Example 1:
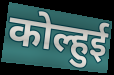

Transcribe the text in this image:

कोल्हुई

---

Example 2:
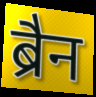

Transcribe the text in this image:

ब्रैन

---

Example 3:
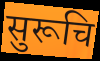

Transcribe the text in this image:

सुरूचि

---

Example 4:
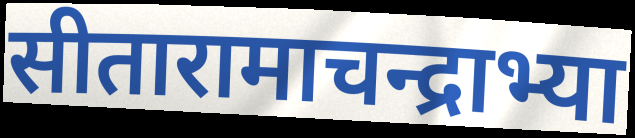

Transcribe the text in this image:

सीतारामाचन्द्राभ्या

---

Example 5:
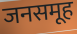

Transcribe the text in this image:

जनसमूह